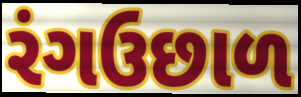
રંગઉછાળ